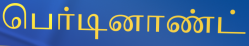
பெர்டினாண்ட்